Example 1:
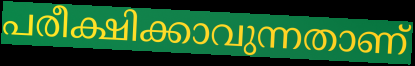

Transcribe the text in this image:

പരീക്ഷിക്കാവുന്നതാണ്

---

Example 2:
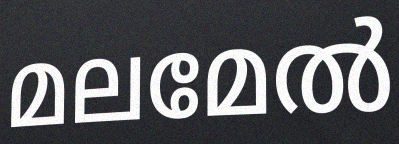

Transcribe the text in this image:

മലമേൽ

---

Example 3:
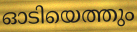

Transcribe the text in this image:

ഓടിയെത്തും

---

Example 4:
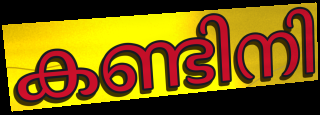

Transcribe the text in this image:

കണ്ടിനി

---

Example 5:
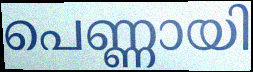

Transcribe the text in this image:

പെണ്ണായി